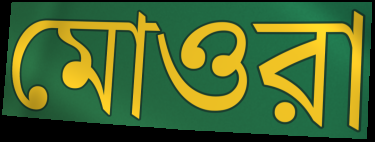
মোওরা